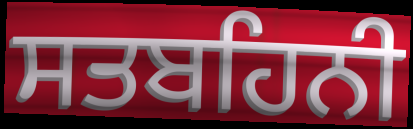
ਸਤਬਹਿਨੀ